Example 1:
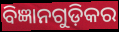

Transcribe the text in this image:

ବିଜ୍ଞାନଗୁଡ଼ିକର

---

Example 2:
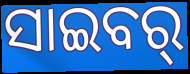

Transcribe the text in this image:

ସାଇବର୍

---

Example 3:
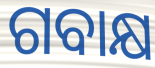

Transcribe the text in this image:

ଗବାକ୍ଷ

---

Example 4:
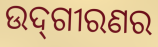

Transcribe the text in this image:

ଉଦ୍‌ଗୀରଣର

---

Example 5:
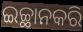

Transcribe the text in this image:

ଇଚ୍ଛାନକରି